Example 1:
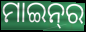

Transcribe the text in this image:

ମାଇନ୍‍ର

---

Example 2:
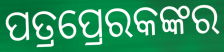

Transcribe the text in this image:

ପତ୍ରପ୍ରେରକଙ୍କର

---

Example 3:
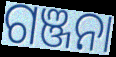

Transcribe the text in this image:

ଗଞ୍ଜନା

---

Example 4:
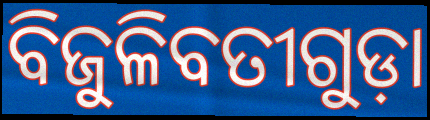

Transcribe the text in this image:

ବିଜୁଳିବତୀଗୁଡ଼ା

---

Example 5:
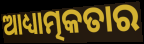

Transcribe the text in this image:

ଆଧ୍ୟାତ୍ମକତାର